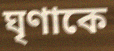
ঘৃণাকে